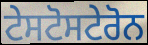
ਟੇਸਟੋਸਟੇਰੋਨ